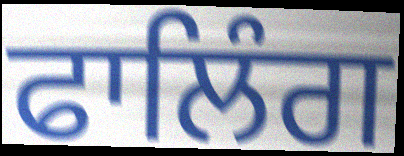
ਫਾਲਿੰਗ